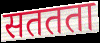
सततता